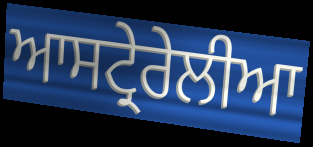
ਆਸਟ੍ਰੇਰੇਲੀਆ